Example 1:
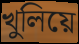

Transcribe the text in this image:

খুলিয়ে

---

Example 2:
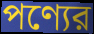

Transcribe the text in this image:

পণ্যের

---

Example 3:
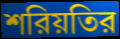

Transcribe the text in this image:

শরিয়তির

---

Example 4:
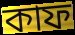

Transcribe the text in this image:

কাফ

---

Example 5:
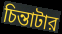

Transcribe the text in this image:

চিন্তাটার